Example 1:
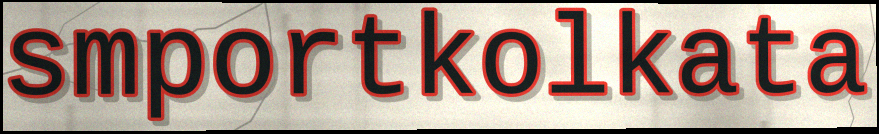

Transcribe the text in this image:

smportkolkata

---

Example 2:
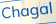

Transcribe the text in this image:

Chagal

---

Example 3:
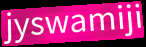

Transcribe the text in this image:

jyswamiji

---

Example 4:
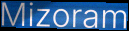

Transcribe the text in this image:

Mizoram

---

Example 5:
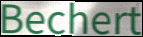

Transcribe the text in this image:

Bechert